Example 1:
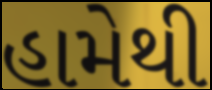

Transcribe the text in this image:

હામેથી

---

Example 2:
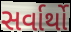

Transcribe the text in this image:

સર્વાર્થો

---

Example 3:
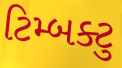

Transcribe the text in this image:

ટિમ્બક્ટુ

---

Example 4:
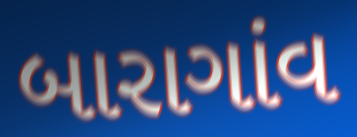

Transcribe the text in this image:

બારાગાંવ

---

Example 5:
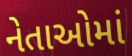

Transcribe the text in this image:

નેતાઓમાં